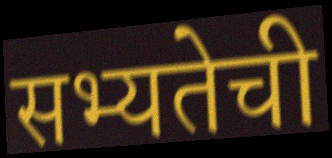
सभ्यतेची